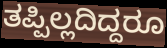
ತಪ್ಪಿಲ್ಲದಿದ್ದರೂ